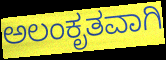
ಅಲಂಕೃತವಾಗಿ